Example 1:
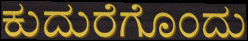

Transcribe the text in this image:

ಕುದುರೆಗೊಂದು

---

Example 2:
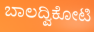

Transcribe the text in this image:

ಬಾಲದ್ವಿಕೋಟಿ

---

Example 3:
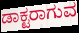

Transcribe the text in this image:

ಡಾಕ್ಟರಾಗುವ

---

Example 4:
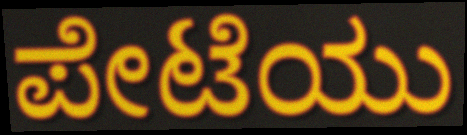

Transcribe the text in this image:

ಪೇಟೆಯು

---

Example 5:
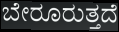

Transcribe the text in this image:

ಬೇರೂರುತ್ತದೆ